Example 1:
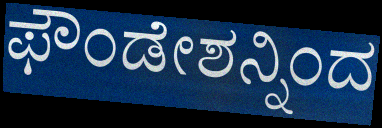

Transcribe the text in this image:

ಫೌಂಡೇಶನ್ನಿಂದ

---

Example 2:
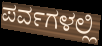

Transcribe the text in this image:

ಪರ್ವಗಳಲ್ಲಿ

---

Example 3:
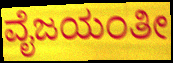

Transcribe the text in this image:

ವೈಜಯಂತೀ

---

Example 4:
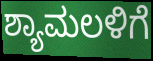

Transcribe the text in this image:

ಶ್ಯಾಮಲಳಿಗೆ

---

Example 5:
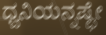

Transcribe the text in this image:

ಧ್ವನಿಯನ್ನಷ್ಟೇ